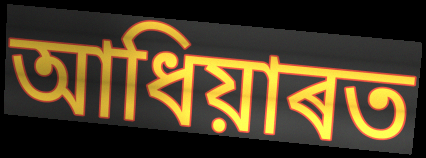
আধিয়াৰত